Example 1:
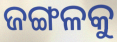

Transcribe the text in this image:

ଜଙ୍ଗଳକୁ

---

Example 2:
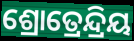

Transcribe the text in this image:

ଶ୍ରୋତ୍ରେନ୍ଦ୍ରିୟ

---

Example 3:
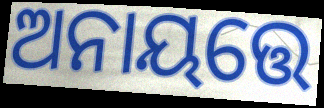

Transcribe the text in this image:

ଅନାୟତ୍ତେ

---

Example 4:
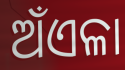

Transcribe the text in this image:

ଅଁଏଳା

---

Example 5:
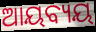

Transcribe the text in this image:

ଆୟବ୍ୟୟ